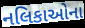
નલિકાઓના